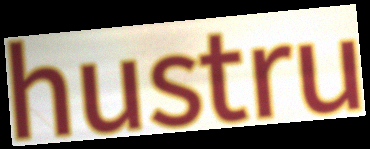
hustru